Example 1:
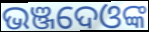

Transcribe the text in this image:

ଭଞ୍ଜଦେଓଙ୍କ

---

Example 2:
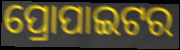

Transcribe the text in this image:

ପ୍ରୋପାଇଟର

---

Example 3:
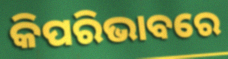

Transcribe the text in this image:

କିପରିଭାବରେ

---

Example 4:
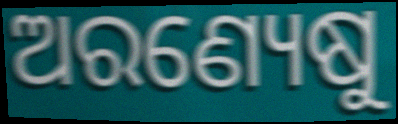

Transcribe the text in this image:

ଅରଣ୍ୟେଷୁ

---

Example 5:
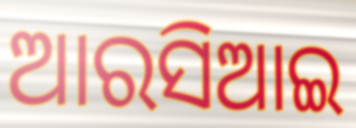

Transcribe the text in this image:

ଆରସିଆଇ